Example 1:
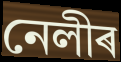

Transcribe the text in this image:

নেলীৰ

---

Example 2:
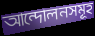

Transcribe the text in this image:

আন্দোলনসমূহ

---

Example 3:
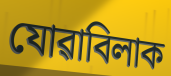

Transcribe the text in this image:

যোৱাবিলাক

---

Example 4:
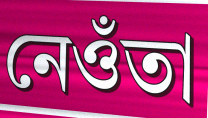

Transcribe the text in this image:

নেওঁতা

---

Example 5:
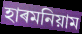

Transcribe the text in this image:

হাৰমনিয়াম